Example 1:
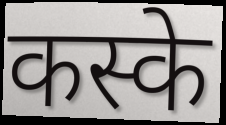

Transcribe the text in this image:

कस्के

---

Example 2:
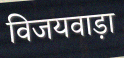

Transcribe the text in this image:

विजयवाड़ा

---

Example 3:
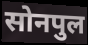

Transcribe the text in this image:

सोनपुल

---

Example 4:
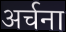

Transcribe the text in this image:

अर्चना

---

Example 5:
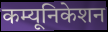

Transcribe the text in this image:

कम्यूनिकेशन